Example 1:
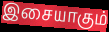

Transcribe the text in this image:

இசையாகும்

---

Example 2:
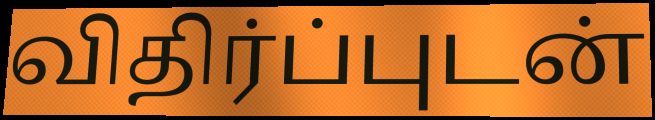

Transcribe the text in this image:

விதிர்ப்புடன்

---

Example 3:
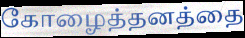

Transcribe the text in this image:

கோழைத்தனத்தை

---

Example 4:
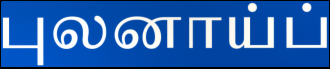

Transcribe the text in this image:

புலனாய்ப்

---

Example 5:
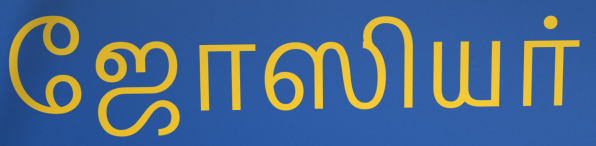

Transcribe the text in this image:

ஜோஸியர்